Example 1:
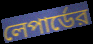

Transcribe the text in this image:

লেপার্ডের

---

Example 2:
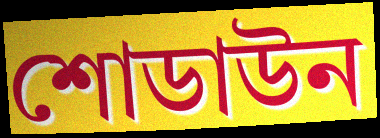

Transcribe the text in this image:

শোডাউন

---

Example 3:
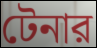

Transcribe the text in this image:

টেনার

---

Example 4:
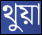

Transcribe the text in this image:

থুয়া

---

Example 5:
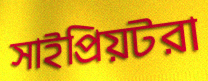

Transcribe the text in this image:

সাইপ্রিয়টরা